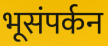
भूसंपर्कन